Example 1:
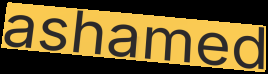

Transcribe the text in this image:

ashamed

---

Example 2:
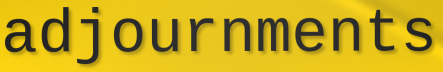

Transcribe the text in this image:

adjournments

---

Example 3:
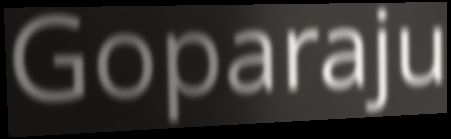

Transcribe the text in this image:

Goparaju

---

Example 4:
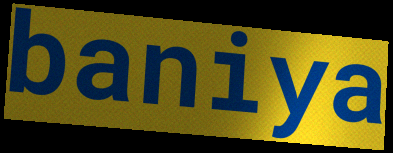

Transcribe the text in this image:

baniya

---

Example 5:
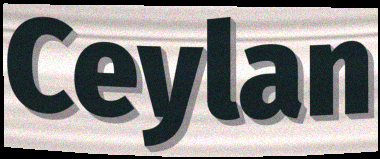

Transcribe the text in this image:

Ceylan